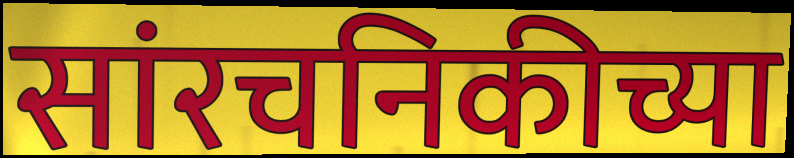
सांरचनिकीच्या